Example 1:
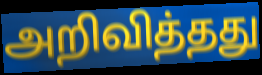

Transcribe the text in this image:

அறிவித்தது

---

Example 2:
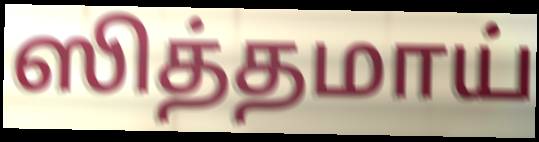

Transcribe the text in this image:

ஸித்தமாய்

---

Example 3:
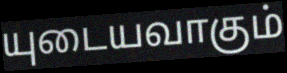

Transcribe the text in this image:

யுடையவாகும்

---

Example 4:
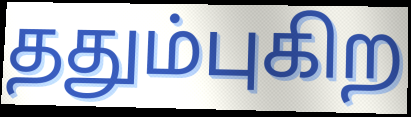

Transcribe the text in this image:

ததும்புகிற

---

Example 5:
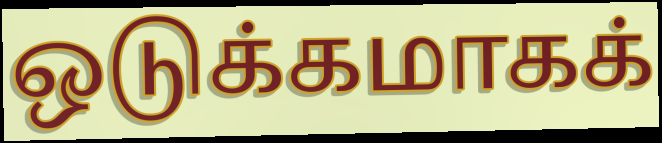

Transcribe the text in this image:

ஒடுக்கமாகக்